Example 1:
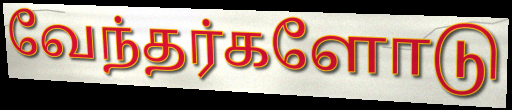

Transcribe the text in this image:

வேந்தர்களோடு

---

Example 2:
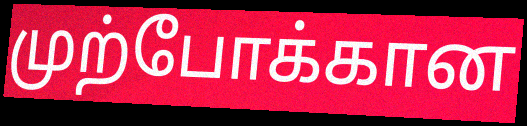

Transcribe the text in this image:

முற்போக்கான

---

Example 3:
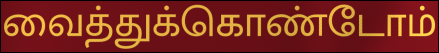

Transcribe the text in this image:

வைத்துக்கொண்டோம்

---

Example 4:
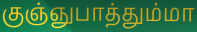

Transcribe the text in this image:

குஞ்ஞுபாத்தும்மா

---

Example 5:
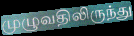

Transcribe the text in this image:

முழுவதிலிருந்து